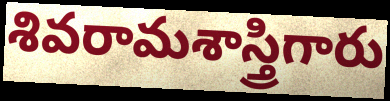
శివరామశాస్త్రిగారు